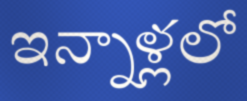
ఇన్నాళ్లలో